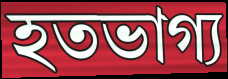
হতভাগ্য